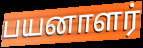
பயனாளர்